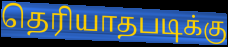
தெரியாதபடிக்கு